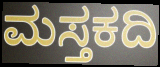
ಮಸ್ತಕದಿ